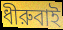
ধীরুবাই